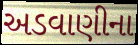
અડવાણીના